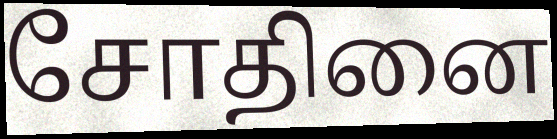
சோதினை